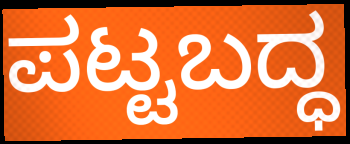
ಪಟ್ಟಬದ್ಧ